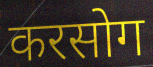
करसोग